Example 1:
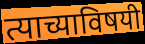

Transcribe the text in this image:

त्याच्याविषयी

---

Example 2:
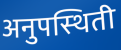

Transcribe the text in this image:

अनुपस्थिती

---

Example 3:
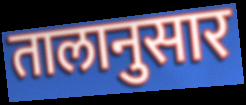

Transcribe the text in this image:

तालानुसार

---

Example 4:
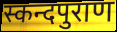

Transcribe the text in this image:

स्कन्दपुराण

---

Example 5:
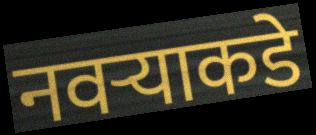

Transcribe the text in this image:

नवऱ्याकडे